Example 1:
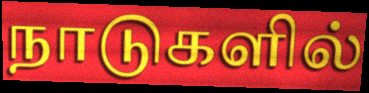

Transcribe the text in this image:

நாடுகளில்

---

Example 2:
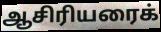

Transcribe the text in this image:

ஆசிரியரைக்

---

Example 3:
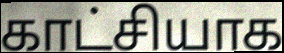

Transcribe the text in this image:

காட்சியாக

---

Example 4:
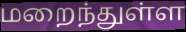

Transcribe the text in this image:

மறைந்துள்ள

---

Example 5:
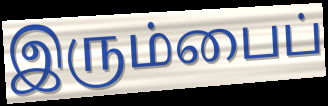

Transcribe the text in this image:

இரும்பைப்